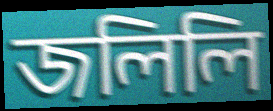
জলিলি